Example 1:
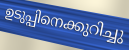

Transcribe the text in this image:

ഉടുപ്പിനെക്കുറിച്ചു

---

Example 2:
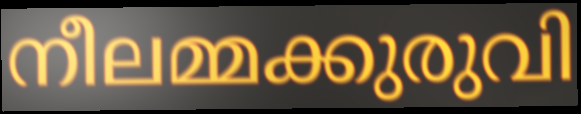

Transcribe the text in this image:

നീലമ്മക്കുരുവി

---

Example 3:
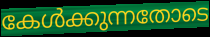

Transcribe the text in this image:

കേൾക്കുന്നതോടെ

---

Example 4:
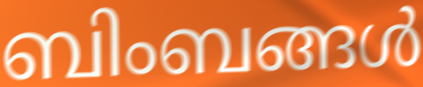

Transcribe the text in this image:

ബിംബങ്ങൾ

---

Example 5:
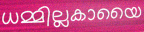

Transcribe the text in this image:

ധമ്മില്ലകായൈ